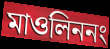
মাওলিননং